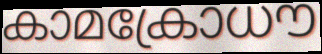
കാമക്രോധൗ